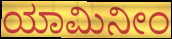
ಯಾಮಿನೀಂ